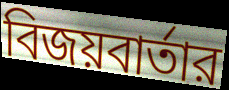
বিজয়বার্তার